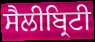
ਸੈਲੀਬ੍ਰਿਟੀ